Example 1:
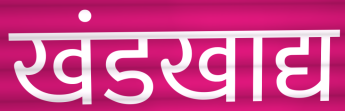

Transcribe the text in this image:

खंडखाद्य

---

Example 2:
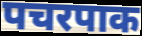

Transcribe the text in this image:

पचरपाक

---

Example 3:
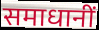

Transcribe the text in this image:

समाधानीं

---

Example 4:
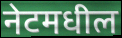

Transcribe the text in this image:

नेटमधील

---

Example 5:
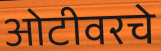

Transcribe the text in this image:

ओटीवरचे